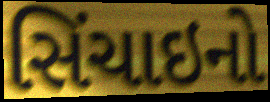
સિંચાઇનો